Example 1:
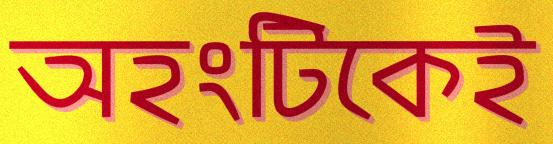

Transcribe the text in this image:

অহংটিকেই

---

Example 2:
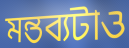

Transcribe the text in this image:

মন্তব্যটাও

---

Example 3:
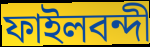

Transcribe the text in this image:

ফাইলবন্দী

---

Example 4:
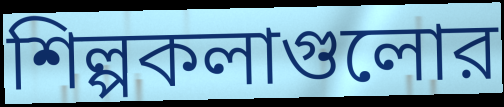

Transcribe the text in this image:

শিল্পকলাগুলোর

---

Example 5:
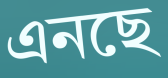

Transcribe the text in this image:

এনছে